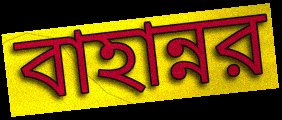
বাহান্নর